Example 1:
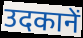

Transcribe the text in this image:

उदकानें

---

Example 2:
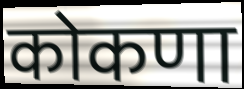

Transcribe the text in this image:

कोकणा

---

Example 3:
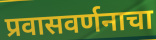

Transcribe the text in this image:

प्रवासवर्णनाचा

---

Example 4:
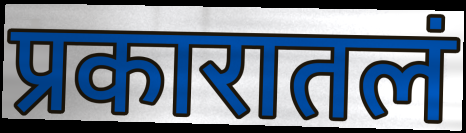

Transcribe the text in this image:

प्रकारातलं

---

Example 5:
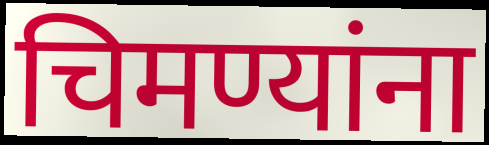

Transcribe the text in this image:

चिमण्यांना